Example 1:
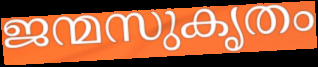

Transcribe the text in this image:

ജന്മസുകൃതം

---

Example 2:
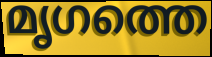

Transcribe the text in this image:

മൃഗത്തെ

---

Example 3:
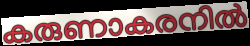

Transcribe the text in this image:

കരുണാകരനിൽ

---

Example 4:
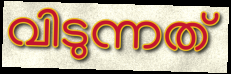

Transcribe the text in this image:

വിടുന്നത്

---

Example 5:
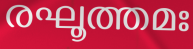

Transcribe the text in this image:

രഘൂത്തമഃ